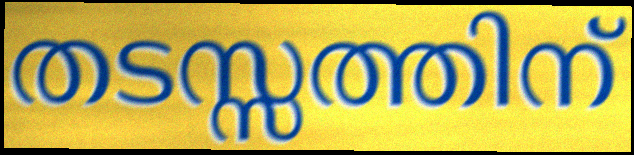
തടസ്സത്തിന്